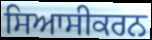
ਸਿਆਸੀਕਰਨ